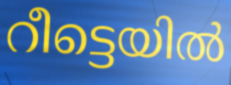
റീട്ടെയിൽ